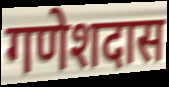
गणेशदास